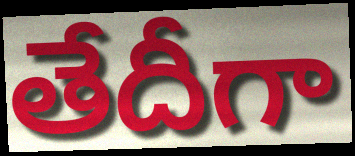
తేదీగా